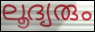
ലൂദ്യരും